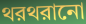
থরথরানো